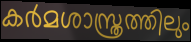
കർമശാസ്ത്രത്തിലും